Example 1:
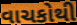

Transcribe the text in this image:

વાચકોથી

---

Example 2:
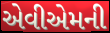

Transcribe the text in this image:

એવીએમની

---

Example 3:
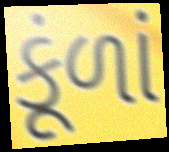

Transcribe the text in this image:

કૂંળાં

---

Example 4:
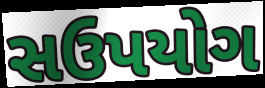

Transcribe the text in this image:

સઉપયોગ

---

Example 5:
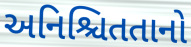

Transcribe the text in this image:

અનિશ્ચિતતાનો